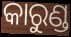
କାରୁଣ୍ଡ